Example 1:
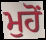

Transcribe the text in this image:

ਮੁਹੋਂ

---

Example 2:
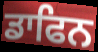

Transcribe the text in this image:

ਡਾਫਿਨ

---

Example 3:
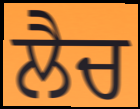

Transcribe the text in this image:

ਲੈਚ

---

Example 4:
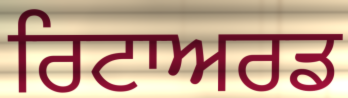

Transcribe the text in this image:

ਰਿਟਾਅਰਡ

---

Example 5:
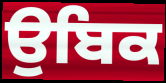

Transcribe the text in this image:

ਉਬਿਕ